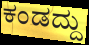
ಕಂಡದ್ದು